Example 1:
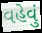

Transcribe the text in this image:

વહેવું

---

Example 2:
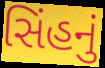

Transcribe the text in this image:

સિંહનું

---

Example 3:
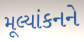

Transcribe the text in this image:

મૂલ્યાંકનને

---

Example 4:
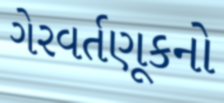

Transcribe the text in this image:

ગેરવર્તણૂકનો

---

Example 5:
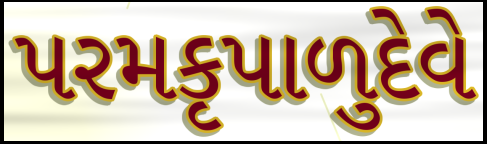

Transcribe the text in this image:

પરમકૃપાળુદેવે